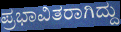
ಪ್ರಭಾವಿತರಾಗಿದ್ದು